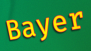
Bayer